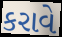
કરાવે